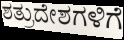
ಶತ್ರುದೇಶಗಳಿಗೆ